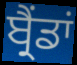
ਬ੍ਰੈਂਡਾਂ